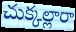
చుక్కల్లారా